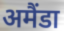
अमैंडा